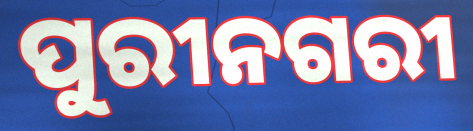
ପୁରୀନଗରୀ